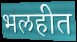
भलहीत